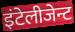
इंटेलीजेन्ट